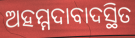
ଅହମ୍ମଦାବାଦସ୍ଥିତ